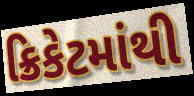
ક્રિકેટમાંથી